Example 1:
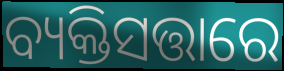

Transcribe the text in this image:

ବ୍ୟକ୍ତିସତ୍ତାରେ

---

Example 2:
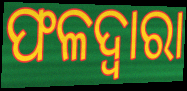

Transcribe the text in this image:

ଫଳଦ୍ୱାରା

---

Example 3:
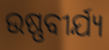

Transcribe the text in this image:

ଉଷ୍ଣବୀର୍ଯ୍ୟ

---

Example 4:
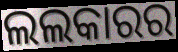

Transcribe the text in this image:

ଲଲକାରର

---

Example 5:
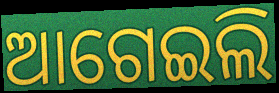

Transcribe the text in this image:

ଆଗେଇଲି